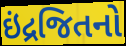
ઇંદ્રજિતનો